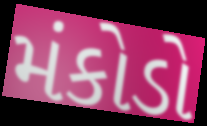
મંકોડો